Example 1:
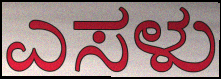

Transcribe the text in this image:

ಎಸಳು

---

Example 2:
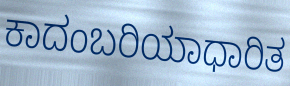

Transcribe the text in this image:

ಕಾದಂಬರಿಯಾಧಾರಿತ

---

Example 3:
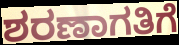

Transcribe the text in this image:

ಶರಣಾಗತಿಗೆ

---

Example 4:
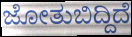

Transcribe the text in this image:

ಜೋತುಬಿದ್ದಿದೆ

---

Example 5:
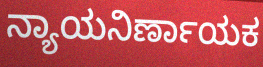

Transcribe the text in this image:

ನ್ಯಾಯನಿರ್ಣಾಯಕ